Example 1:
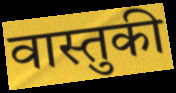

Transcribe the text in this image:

वास्तुकी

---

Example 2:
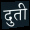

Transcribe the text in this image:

दुती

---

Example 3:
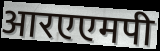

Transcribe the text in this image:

आरएएमपी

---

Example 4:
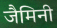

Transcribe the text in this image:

जैमिनी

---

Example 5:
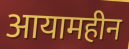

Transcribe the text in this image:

आयामहीन